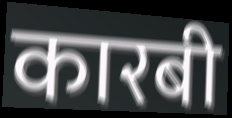
कारबी